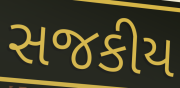
સજકીય